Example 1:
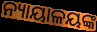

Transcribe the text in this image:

ନ୍ୟାୟାଳୟଙ୍କ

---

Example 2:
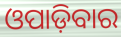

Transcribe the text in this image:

ଓପାଡ଼ିବାର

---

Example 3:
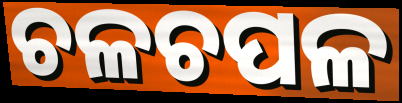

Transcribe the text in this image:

ଚଳଚପଳ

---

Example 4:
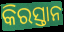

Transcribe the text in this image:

କିରସ୍ତାନ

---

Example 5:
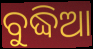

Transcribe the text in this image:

ବୁଦ୍ଧିଆ